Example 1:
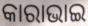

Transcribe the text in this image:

କାରାଭାଇ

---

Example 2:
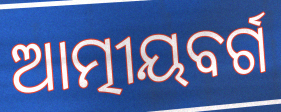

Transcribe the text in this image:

ଆତ୍ମୀୟବର୍ଗ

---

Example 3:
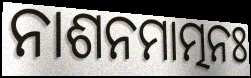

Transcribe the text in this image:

ନାଶନମାତ୍ମନଃ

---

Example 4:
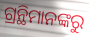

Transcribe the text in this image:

ଗ୍ରନ୍ଥିମାନଙ୍କରୁ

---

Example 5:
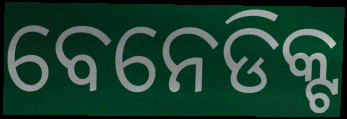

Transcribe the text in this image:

ବେନେଡିକ୍ଟ